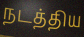
நடத்திய